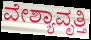
ವೇಶ್ಯಾವೃತ್ತಿ